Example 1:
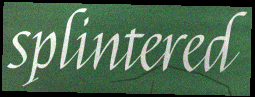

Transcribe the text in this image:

splintered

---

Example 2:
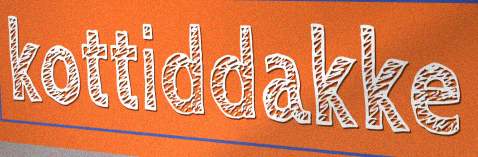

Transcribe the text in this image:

kottiddakke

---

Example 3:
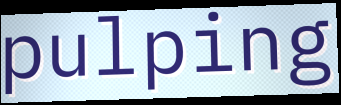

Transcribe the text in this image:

pulping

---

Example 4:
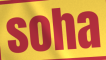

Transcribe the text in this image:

soha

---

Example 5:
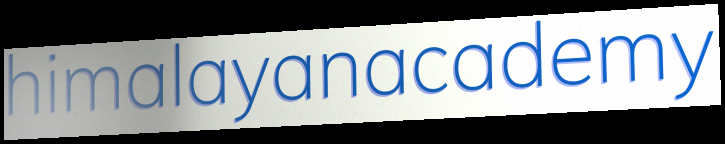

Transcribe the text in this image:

himalayanacademy